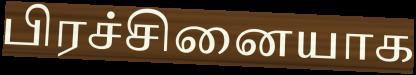
பிரச்சினையாக